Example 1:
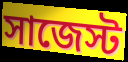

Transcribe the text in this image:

সাজেস্ট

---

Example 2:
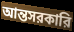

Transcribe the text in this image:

আন্তসরকারি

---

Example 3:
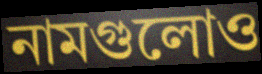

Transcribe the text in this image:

নামগুলোও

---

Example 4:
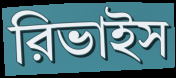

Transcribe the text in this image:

রিভাইস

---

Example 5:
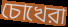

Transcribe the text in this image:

চোখেরা